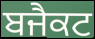
ਬਜੈਕਟ